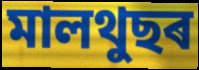
মালথুছৰ